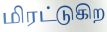
மிரட்டுகிற